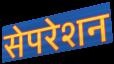
सेपरेशन